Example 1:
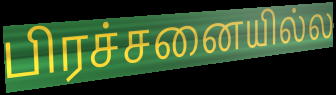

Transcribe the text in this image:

பிரச்சனையில்ல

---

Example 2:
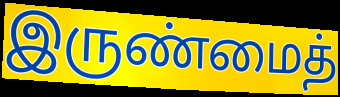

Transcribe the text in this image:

இருண்மைத்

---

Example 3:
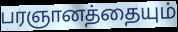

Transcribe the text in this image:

பரஞானத்தையும்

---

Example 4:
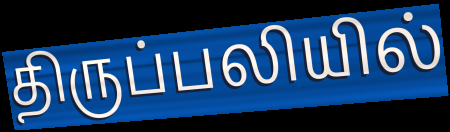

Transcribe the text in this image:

திருப்பலியில்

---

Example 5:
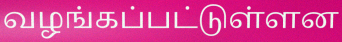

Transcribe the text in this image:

வழங்கப்பட்டுள்ளன